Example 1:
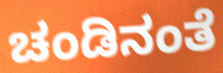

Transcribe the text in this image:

ಚಂಡಿನಂತೆ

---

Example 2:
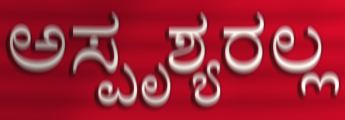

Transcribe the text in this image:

ಅಸ್ಪೃಶ್ಯರಲ್ಲ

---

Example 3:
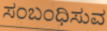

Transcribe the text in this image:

ಸಂಬಂಧಿಸುವ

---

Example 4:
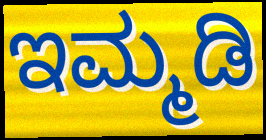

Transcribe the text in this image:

ಇಮ್ಮಡಿ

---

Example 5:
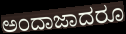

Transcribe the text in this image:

ಅಂದಾಜಾದರೂ